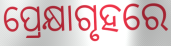
ପ୍ରେକ୍ଷାଗୃହରେ